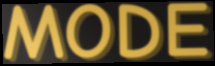
MODE